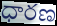
ధారణ